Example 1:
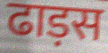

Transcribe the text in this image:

ढाड़स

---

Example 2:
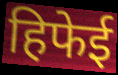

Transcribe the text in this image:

हिफेई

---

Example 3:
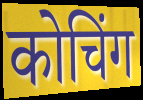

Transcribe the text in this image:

कोचिंग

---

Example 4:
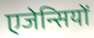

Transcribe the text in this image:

एजेन्सियों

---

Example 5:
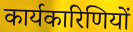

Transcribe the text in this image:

कार्यकारिणियों